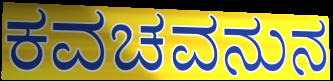
ಕವಚವನುನ